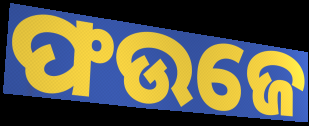
ଫଉଜେ